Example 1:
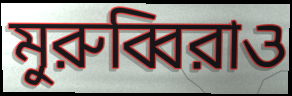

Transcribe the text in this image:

মুরুব্বিরাও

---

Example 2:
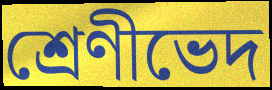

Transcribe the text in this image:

শ্রেণীভেদ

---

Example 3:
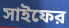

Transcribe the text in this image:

সাইফের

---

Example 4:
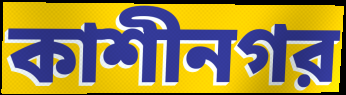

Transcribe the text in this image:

কাশীনগর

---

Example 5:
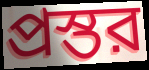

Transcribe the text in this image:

প্রস্তর